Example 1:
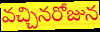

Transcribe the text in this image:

వచ్చినరోజున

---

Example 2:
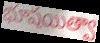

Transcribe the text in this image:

భూషయిత్వా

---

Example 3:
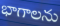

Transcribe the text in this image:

భాగాలను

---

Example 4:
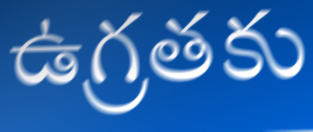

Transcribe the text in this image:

ఉగ్రతకు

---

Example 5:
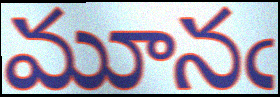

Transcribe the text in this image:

మూనఁ